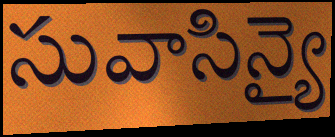
సువాసిన్యై